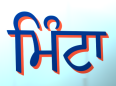
ਮਿੰਟਾ